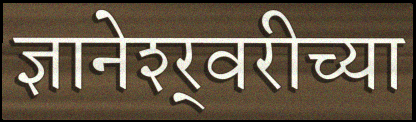
ज्ञानेश्र्वरीच्या